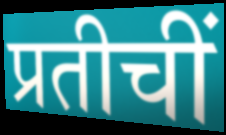
प्रतीचीं